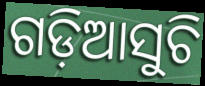
ଗଡ଼ିଆସୁଚି